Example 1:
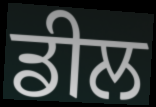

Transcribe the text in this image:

ਡੀਲ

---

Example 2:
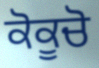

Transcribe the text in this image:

ਕੋਕੂਚੋ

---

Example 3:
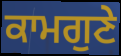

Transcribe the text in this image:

ਕਾਮਗੁਣੇ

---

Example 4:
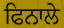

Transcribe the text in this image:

ਫਿਨਾਲੇ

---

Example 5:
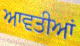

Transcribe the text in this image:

ਆਵਤੀਆਂ